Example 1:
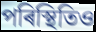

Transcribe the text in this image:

পৰিস্থিতিও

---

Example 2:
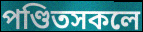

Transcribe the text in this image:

পণ্ডিতসকলে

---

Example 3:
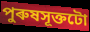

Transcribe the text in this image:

পুৰুষসূক্তটো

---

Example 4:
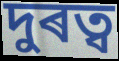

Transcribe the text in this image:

দুৰত্ব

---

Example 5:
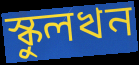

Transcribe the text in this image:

স্কুলখন